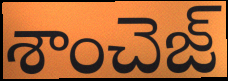
శాంచెజ్